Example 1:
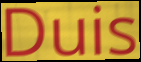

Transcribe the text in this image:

Duis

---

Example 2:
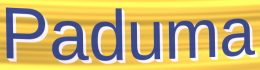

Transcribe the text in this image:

Paduma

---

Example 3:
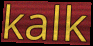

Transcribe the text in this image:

kalk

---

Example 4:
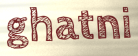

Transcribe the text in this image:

ghatni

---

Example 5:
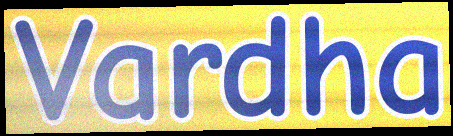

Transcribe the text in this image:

Vardha